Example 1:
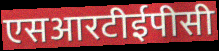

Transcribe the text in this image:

एसआरटीईपीसी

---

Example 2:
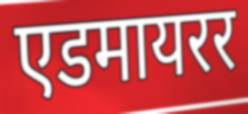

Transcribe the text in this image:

एडमायरर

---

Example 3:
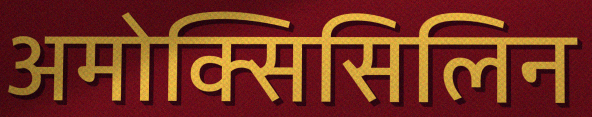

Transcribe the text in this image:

अमोक्सिसिलिन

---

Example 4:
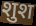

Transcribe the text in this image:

शुश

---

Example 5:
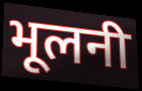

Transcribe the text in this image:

भूलनी